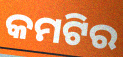
କମଟିର